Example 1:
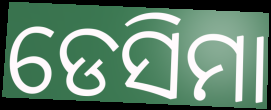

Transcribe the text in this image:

ଡେସିମା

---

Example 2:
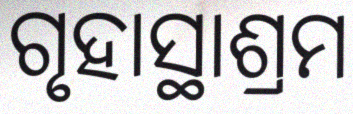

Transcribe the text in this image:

ଗୃହାସ୍ଥାଶ୍ରମ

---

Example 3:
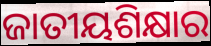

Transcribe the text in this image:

ଜାତୀୟଶିକ୍ଷାର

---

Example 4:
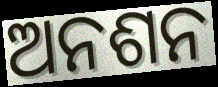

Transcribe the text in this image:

ଅନଶନ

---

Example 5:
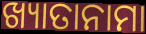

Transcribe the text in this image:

ଖ୍ୟାତାନାମା